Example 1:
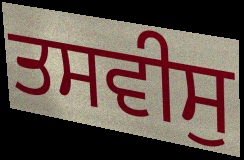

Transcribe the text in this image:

ਤਸਵੀਸੁ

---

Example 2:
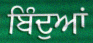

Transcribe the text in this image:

ਬਿੰਦੁਆਂ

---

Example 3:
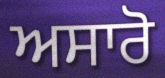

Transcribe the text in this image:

ਅਸਾਰੋ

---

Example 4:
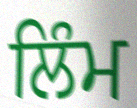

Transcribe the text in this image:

ਲਿੰਮ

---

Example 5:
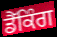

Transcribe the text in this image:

ਡੈੱਕਿੰਗ